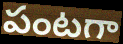
పంటగా